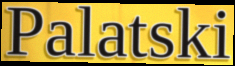
Palatski